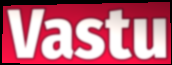
Vastu